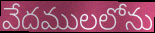
వేదములలోను